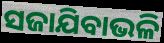
ସଜାଯିବାଭଳି